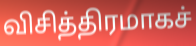
விசித்திரமாகச்